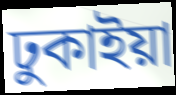
ঢুকাইয়া